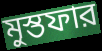
মুস্তফার